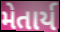
મેતાર્ય